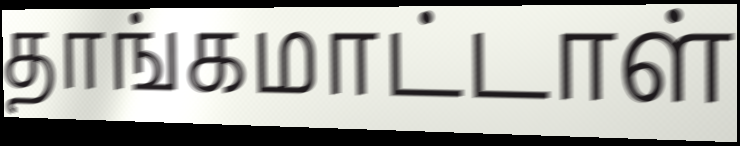
தாங்கமாட்டாள்